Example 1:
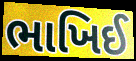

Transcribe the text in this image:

ભાખિઈ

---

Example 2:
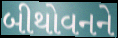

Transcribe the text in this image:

બીથોવનને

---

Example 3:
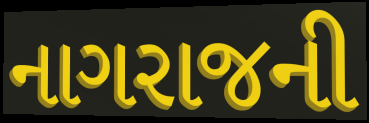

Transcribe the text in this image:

નાગરાજની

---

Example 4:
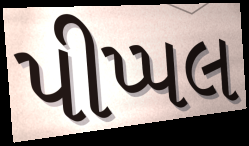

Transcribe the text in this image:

પીપ્પલ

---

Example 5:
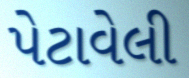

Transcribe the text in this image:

પેટાવેલી